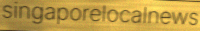
singaporelocalnews